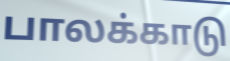
பாலக்காடு